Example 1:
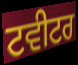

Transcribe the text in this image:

ਟਵੀਟਰ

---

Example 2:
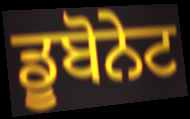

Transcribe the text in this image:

ਡੂਬੋਨੇਟ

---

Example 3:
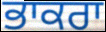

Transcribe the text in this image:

ਭਾਕਰਾ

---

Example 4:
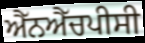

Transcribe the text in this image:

ਐੱਨਐੱਚਪੀਸੀ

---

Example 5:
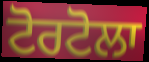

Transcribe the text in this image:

ਟੋਰਟੋਲਾ